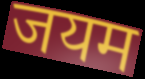
जयम